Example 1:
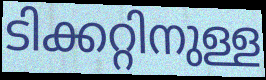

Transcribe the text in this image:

ടിക്കറ്റിനുള്ള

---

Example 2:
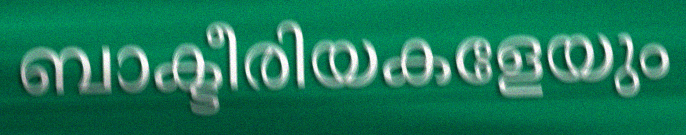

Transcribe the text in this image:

ബാക്ടീരിയകളേയും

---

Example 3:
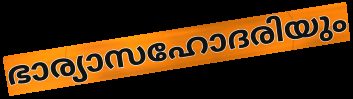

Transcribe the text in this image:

ഭാര്യാസഹോദരിയും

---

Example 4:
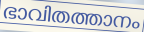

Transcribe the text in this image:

ഭാവിതത്താനം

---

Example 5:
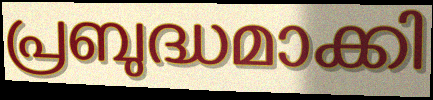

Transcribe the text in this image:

പ്രബുദ്ധമാക്കി